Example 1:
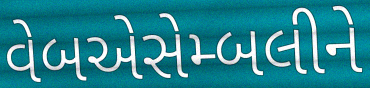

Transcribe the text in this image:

વેબએસેમ્બલીને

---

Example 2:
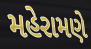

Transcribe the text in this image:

મહેરામણે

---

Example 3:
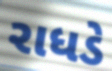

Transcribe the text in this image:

રાધડે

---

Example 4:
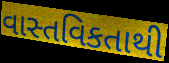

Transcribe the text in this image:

વાસ્તવિકતાથી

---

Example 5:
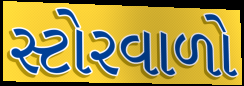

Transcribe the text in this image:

સ્ટોરવાળો